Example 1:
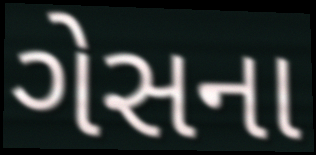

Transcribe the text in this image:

ગેસના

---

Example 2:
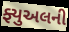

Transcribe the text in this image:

ફ્યુઅલની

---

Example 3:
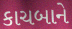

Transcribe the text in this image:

કાચબાને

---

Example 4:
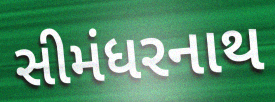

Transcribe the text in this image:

સીમંધરનાથ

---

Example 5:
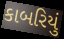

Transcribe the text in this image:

કાબરિયું